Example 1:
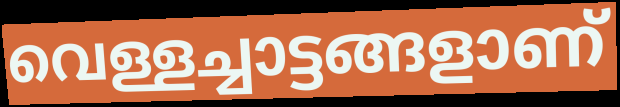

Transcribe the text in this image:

വെള്ളച്ചാട്ടങ്ങളാണ്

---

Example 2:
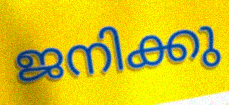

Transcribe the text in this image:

ജനിക്കു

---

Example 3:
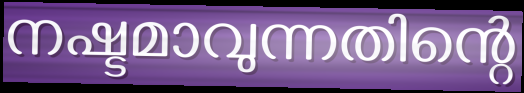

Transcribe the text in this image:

നഷ്ടമാവുന്നതിന്റെ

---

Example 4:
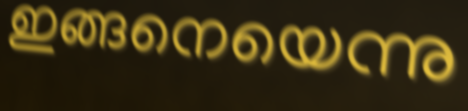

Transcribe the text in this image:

ഇങ്ങനെയെന്നു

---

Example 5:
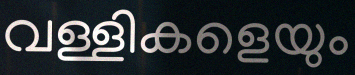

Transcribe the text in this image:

വള്ളികളെയും